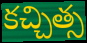
కచ్చిత్స